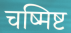
चष्मिष्ट